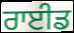
ਰਾਈਡ